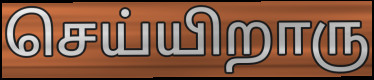
செய்யிறாரு